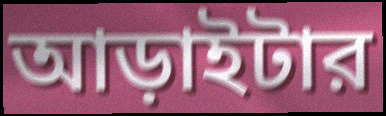
আড়াইটার